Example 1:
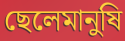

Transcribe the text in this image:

ছেলেমানুষি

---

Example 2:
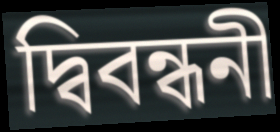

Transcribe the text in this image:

দ্বিবন্ধনী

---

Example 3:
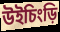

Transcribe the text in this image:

উইচিংড়ি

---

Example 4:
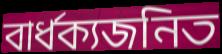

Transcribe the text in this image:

বার্ধক্যজনিত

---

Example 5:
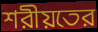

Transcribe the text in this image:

শরীয়তের